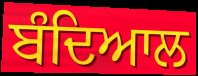
ਬੰਦਿਆਲ